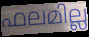
ഫലമില്ല